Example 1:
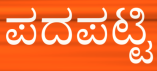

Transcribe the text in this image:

ಪದಪಟ್ಟಿ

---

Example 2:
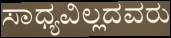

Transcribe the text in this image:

ಸಾಧ್ಯವಿಲ್ಲದವರು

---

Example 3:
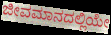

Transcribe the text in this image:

ಜೀವಮಾನದಲ್ಲಿಯೇ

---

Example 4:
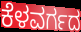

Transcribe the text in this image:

ಕೆಳವರ್ಗದ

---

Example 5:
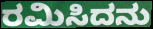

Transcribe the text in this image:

ರಮಿಸಿದನು